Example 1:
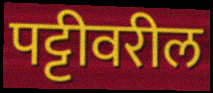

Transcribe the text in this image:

पट्टीवरील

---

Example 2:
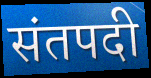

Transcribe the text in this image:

संतपदी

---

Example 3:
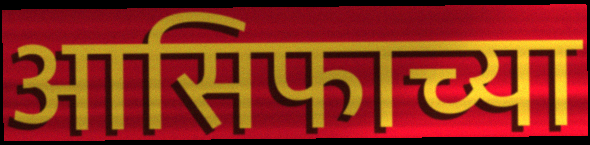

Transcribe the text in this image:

आसिफाच्या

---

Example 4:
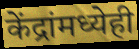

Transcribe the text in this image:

केंद्रांमध्येही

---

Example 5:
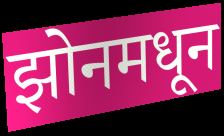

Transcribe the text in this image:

झोनमधून